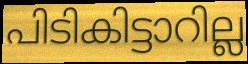
പിടികിട്ടാറില്ല